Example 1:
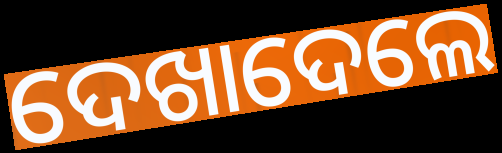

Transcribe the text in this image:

ଦେଖାଦେଲେ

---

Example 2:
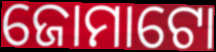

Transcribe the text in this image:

ଜୋମାଟୋ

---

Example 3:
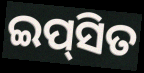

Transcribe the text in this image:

ଇପ୍‌ସିତ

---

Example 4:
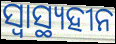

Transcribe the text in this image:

ସ୍ୱାସ୍ଥ୍ୟହୀନ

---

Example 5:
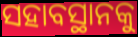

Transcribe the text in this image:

ସହାବସ୍ଥାନକୁ